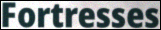
Fortresses